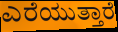
ಎರೆಯುತ್ತಾರೆ